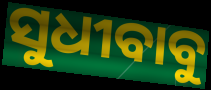
ସୁଧୀବାବୁ